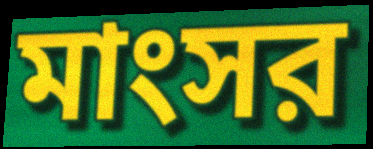
মাংসর